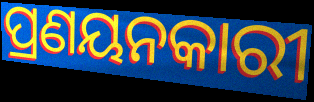
ପ୍ରଣୟନକାରୀ